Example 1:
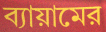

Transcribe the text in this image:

ব্যায়ামের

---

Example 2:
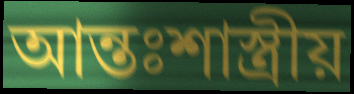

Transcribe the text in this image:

আন্তঃশাস্ত্রীয়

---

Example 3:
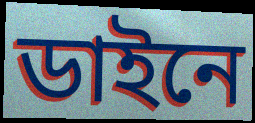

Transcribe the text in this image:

ডাইনে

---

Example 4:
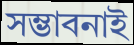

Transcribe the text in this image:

সম্ভাবনাই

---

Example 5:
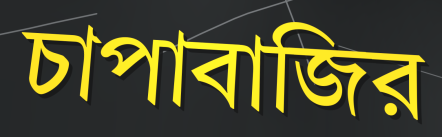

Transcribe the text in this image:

চাপাবাজির